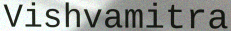
Vishvamitra